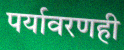
पर्यावरणही